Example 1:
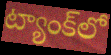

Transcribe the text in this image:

ట్యాంక్‌లో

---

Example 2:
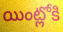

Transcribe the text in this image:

యింట్లోకి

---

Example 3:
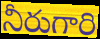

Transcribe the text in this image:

నీరుగారి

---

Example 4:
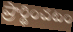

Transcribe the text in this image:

ప్రార్థించటం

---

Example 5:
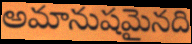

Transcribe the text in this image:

అమానుషమైనది